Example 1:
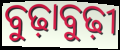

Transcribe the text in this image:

ବୁଢ଼ାବୁଢ଼ୀ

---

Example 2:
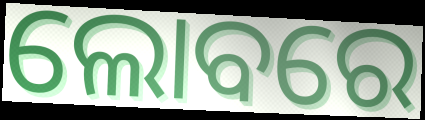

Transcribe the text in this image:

ଲୋବରେ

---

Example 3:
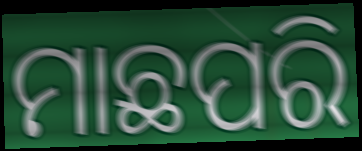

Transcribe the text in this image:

ମାଛପରି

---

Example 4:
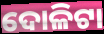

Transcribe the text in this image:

ଦୋଳିଟା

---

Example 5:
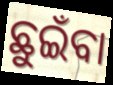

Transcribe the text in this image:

ଛୁଇଁବା